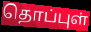
தொப்புள்